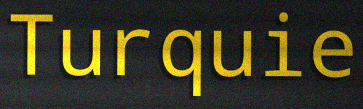
Turquie